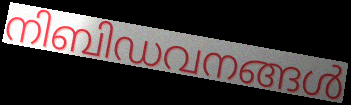
നിബിഡവനങ്ങൾ